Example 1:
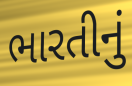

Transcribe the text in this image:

ભારતીનું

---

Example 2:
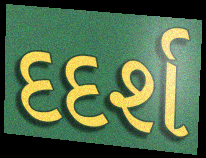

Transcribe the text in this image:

દદર્શ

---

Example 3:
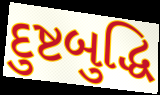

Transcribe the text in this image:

દુષ્ટબુદ્ધિ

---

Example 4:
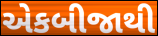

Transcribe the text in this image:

એકબીજાથી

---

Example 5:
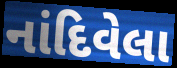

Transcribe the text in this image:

નાંદિવેલા